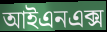
আইএনএক্স